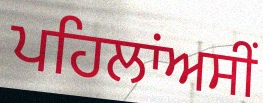
ਪਹਿਲਾਂਅਸੀਂ